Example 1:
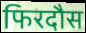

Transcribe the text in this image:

फिरदौस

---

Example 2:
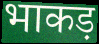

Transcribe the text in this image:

भाकड़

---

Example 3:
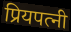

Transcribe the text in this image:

प्रियपत्नी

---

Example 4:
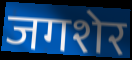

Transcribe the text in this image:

जगशेर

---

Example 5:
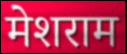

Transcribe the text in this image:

मेशराम